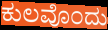
ಕುಲವೊಂದು